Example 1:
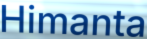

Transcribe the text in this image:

Himanta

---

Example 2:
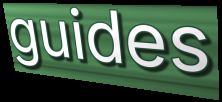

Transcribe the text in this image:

guides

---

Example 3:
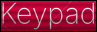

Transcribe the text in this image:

Keypad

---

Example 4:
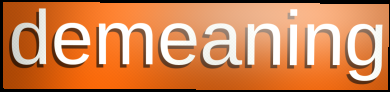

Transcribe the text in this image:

demeaning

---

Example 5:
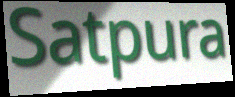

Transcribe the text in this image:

Satpura